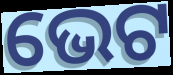
ଭେଟ